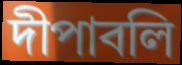
দীপাবলি